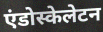
एंडोस्केलेटन